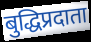
बुद्धिप्रदाता